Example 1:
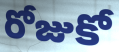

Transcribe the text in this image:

రోజుకో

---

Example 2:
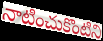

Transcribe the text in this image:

నాటించుకొంటిని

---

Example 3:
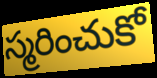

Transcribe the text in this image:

స్మరించుకో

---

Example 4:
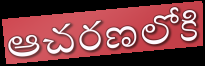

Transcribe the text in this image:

ఆచరణలోకి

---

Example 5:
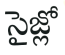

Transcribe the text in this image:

సైజ్లో